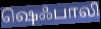
ஷெஃபாலி